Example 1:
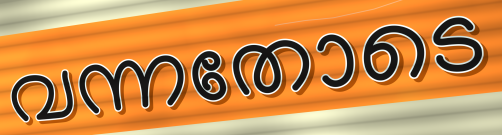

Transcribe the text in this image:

വന്നതോടെ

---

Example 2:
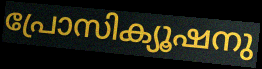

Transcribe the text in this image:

പ്രോസിക്യൂഷനു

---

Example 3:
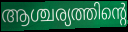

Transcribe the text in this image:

ആശ്ചര്യത്തിന്റെ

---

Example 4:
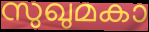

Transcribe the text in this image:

സുഖുമകാ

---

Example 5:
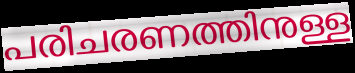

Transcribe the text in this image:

പരിചരണത്തിനുള്ള